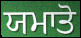
ਯਮਾਤੋ